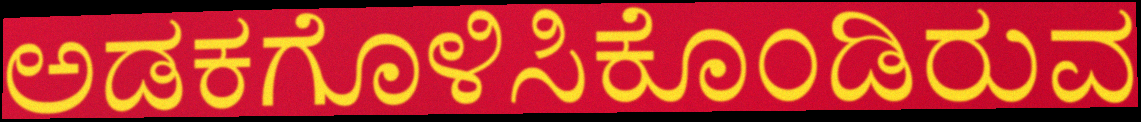
ಅಡಕಗೊಳಿಸಿಕೊಂಡಿರುವ